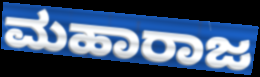
ಮಹಾರಾಜ